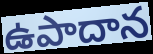
ఉపాదాన